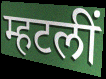
म्हटलीं